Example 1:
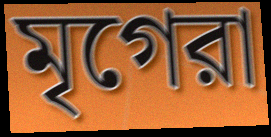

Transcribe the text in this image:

মৃগেরা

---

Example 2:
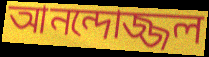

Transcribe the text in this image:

আনন্দোজ্জল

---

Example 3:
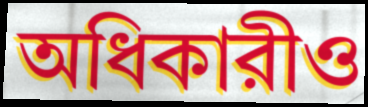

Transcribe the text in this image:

অধিকারীও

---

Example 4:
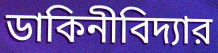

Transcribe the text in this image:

ডাকিনীবিদ্যার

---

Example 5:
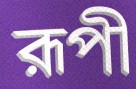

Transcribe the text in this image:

রূপী